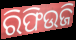
ରିଫିଉଜି